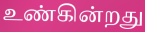
உண்கின்றது